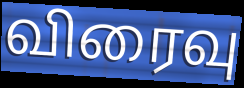
விரைவு